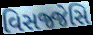
વિસજ્જેસિ